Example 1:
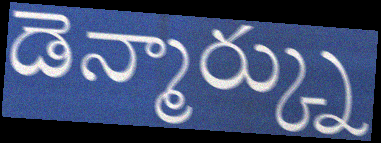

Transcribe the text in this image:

డెన్మార్క్ను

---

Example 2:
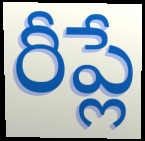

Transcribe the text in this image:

రీప్లే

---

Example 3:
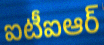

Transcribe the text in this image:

ఐటీఐఆర్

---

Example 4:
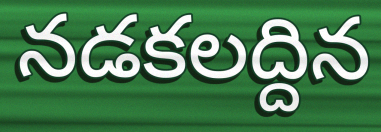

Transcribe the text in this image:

నడకలద్దిన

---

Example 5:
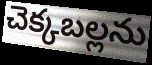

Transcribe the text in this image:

చెక్కబల్లను